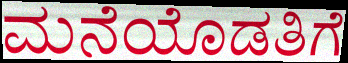
ಮನೆಯೊಡತಿಗೆ